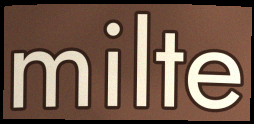
milte